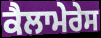
ਕੈਲਾਮੇਰੇਸ